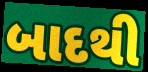
બાદથી